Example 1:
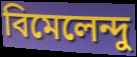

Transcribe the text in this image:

বিমেলেন্দু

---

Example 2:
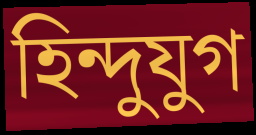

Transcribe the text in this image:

হিন্দুযুগ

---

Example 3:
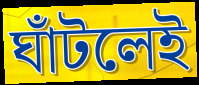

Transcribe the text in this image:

ঘাঁটলেই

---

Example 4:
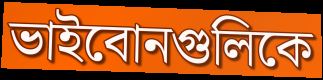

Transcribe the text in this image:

ভাইবোনগুলিকে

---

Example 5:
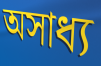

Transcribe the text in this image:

অসাধ্য